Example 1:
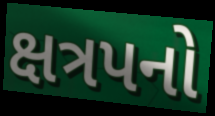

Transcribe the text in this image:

ક્ષત્રપનો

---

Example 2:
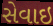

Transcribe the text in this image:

સેવાઇ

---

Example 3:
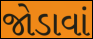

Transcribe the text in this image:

જોડાવાં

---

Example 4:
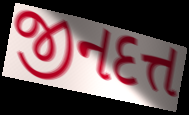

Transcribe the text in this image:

જીનદત્ત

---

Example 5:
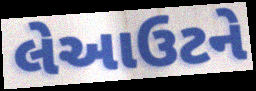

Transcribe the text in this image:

લેઆઉટને